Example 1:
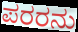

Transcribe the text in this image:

ಪರರನು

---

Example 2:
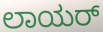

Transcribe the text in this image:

ಲಾಯರ್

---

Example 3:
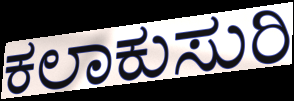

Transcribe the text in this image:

ಕಲಾಕುಸುರಿ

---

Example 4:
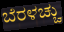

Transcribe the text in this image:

ಬೆರಳಚ್ಚು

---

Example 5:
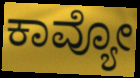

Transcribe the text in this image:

ಕಾವ್ಯೋ